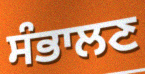
ਸੰਭਾਲਣ